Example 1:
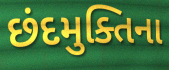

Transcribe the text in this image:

છંદમુક્તિના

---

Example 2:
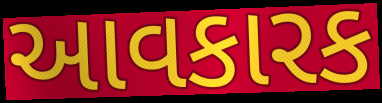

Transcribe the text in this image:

આવકારક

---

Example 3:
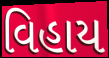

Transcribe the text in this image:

વિહાય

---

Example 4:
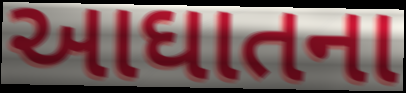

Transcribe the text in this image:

આઘાતના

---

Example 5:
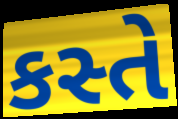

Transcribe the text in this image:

કસ્તે